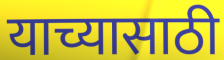
याच्यासाठी